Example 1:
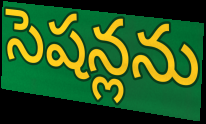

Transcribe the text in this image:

సెషన్లను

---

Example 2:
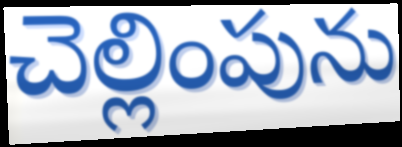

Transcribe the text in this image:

చెల్లింపును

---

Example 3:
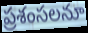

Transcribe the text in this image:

ప్రశంసలనూ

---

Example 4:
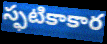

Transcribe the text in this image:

స్ఫటికాకార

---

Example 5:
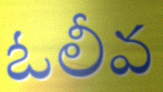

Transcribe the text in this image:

ఓలీవ